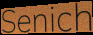
Senich